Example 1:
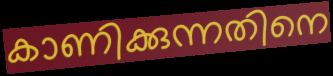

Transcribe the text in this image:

കാണിക്കുന്നതിനെ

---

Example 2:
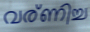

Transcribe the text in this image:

വര്ണിച്ച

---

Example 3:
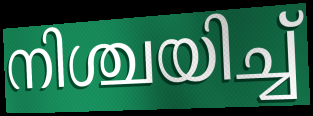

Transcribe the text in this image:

നിശ്ചയിച്ച്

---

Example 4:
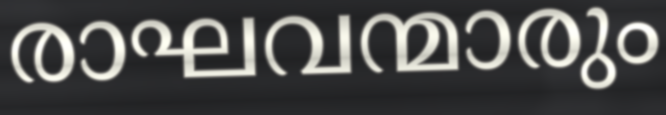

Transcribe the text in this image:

രാഘവന്മാരും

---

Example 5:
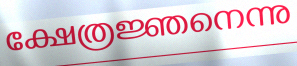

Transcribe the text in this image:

ക്ഷേത്രജ്ഞനെന്നു